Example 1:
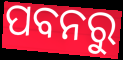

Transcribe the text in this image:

ପବନରୁ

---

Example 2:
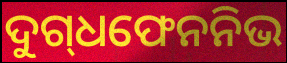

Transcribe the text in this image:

ଦୁଗ୍‍ଧଫେନନିଭ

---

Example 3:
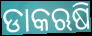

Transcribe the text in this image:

ଡାକଋଷି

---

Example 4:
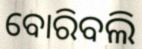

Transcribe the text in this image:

ବୋରିବଲି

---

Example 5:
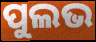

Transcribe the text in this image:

ପୁଲଭ